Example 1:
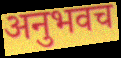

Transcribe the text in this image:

अनुभवच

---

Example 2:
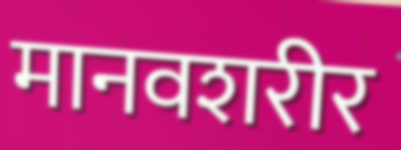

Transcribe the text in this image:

मानवशरीर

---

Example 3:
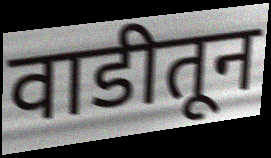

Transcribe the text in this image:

वाडीतून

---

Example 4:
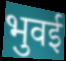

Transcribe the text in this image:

भुवई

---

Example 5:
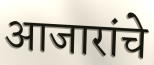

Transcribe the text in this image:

आजारांचे